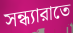
সন্ধ্যারাতে